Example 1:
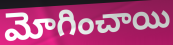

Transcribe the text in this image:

మోగించాయి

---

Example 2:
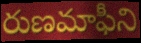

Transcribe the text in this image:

రుణమాఫీని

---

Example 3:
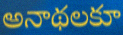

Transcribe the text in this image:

అనాథలకూ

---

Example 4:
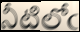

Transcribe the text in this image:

నీటిలోఁ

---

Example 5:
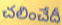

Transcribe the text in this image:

చలించేదీ